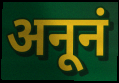
अनूनं